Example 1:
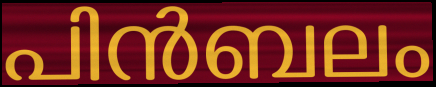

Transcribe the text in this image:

പിൻബലം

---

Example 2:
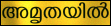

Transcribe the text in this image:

അമൃതയിൽ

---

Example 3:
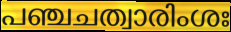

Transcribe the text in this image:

പഞ്ചചത്വാരിംശഃ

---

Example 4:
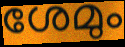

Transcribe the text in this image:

ശേമും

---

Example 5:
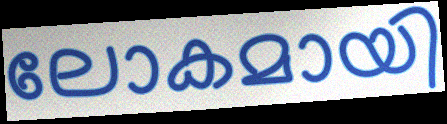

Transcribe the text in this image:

ലോകമായി